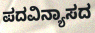
ಪದವಿನ್ಯಾಸದ